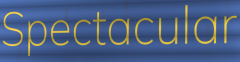
Spectacular